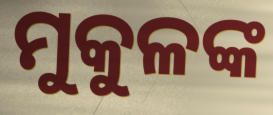
ମୁକୁଳଙ୍କ